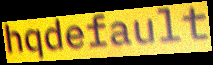
hqdefault